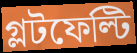
গ্লটফেল্টি